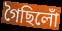
গৈছিলোঁ